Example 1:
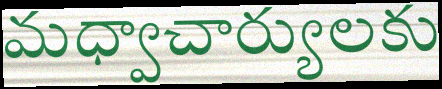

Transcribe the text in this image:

మధ్వాచార్యులకు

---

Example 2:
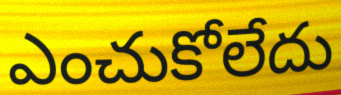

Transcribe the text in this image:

ఎంచుకోలేదు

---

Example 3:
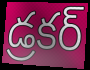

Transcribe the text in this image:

డ్రకర్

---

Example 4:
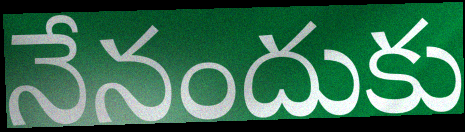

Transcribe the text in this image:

నేనందుకు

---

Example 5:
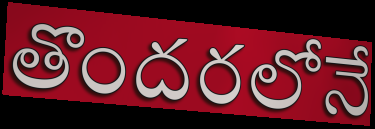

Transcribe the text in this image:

తొందరలోనే